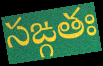
సఙ్గతః